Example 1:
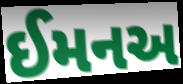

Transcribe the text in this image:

ઈમનઅ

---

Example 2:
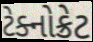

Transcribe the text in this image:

ટેક્નોક્રેટ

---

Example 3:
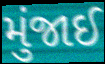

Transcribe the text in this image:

મુંજાઈ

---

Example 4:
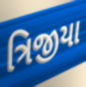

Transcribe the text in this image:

ત્રિજીયા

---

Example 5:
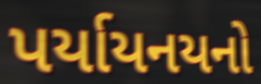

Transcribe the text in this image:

પર્યાયનયનો